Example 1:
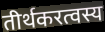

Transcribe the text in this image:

तीर्थकरत्वस्य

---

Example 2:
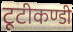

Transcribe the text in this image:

टूटीकण्डी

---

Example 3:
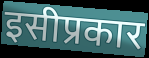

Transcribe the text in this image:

इसीप्रकार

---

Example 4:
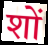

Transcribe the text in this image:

शों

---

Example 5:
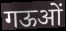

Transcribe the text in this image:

गऊओं